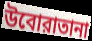
উবোরাতানা